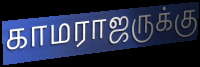
காமராஜருக்கு